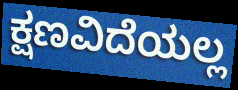
ಕ್ಷಣವಿದೆಯಲ್ಲ